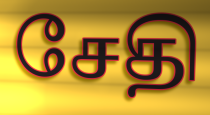
சேதி